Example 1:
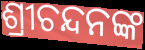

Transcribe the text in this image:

ଶ୍ରୀଚନ୍ଦନଙ୍କ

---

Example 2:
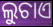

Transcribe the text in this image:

ଲୁଚାଏ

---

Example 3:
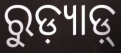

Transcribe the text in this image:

ରୁଡ଼୍ୟାଡ଼୍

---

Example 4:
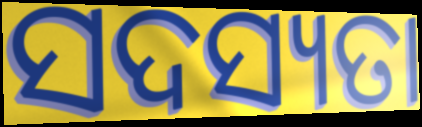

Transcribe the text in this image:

ସଦସ୍ଯତା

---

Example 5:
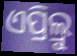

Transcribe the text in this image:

ଏପ୍ରିଲ୍ରୁ